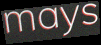
mays